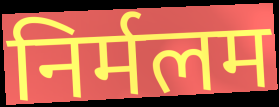
निर्मलम